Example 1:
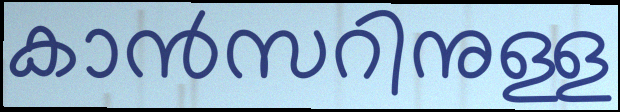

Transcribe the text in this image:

കാൻസറിനുള്ള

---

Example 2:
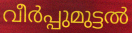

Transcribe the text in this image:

വീർപ്പുമുട്ടൽ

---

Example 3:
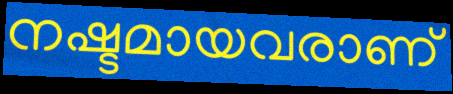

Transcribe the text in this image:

നഷ്ടമായവരാണ്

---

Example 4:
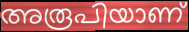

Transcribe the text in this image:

അരൂപിയാണ്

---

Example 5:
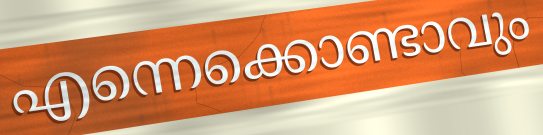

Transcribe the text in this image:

എന്നെക്കൊണ്ടാവും